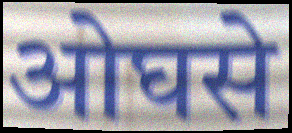
ओघसे